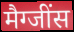
मैग्जींस